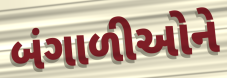
બંગાળીઓને